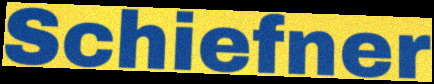
Schiefner